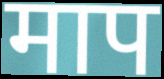
माप